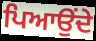
ਪਿਆਉਂਦੇ